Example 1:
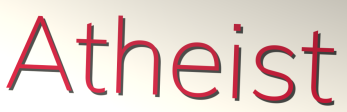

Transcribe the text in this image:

Atheist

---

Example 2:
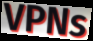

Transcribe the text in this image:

VPNs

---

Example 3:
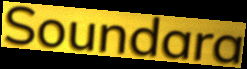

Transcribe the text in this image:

Soundara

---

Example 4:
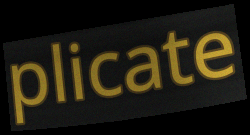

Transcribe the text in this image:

plicate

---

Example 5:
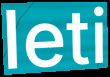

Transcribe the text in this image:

leti